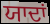
ਯਾਦਾਂ